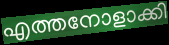
എത്തനോളാക്കി